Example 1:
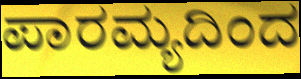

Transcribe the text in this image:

ಪಾರಮ್ಯದಿಂದ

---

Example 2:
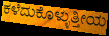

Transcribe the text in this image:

ಕಳೆದುಕೊಳ್ಳುತ್ತೀಯ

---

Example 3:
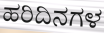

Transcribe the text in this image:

ಹರಿದಿನಗಳ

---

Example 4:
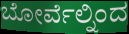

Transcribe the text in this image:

ಬೋರ್ವೆಲ್ನಿಂದ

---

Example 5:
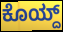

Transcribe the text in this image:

ಕೊಯ್ದ್